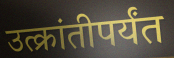
उत्क्रांतीपर्यंत